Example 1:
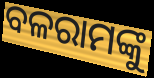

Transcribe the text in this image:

ବଳରାମଙ୍କୁ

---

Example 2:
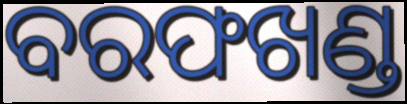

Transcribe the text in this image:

ବରଫଖଣ୍ଡ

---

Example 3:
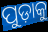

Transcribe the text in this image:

ପୁଡ଼ାକୁ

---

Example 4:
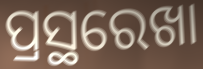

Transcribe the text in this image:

ପ୍ରସ୍ଥରେଖା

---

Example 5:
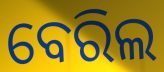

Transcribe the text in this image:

ବେରିଲ